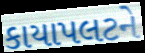
કાયાપલટને